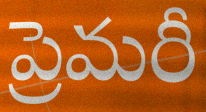
ప్రెమరీ